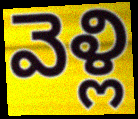
వెళ్లి